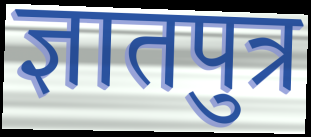
ज्ञातपुत्र